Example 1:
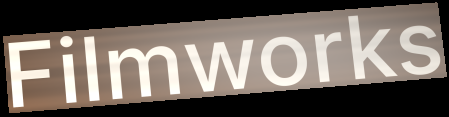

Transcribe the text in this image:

Filmworks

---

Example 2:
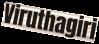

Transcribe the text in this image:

Viruthagiri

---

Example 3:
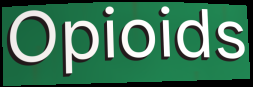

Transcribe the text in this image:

Opioids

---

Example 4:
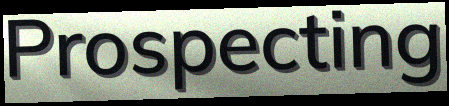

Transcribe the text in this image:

Prospecting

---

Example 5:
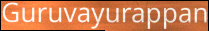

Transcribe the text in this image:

Guruvayurappan